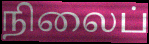
நிலைப்